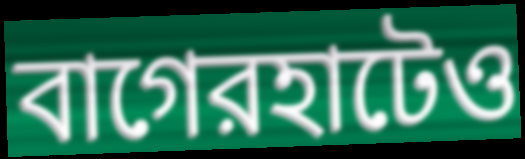
বাগেরহাটেও